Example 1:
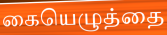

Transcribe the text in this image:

கையெழுத்தை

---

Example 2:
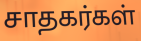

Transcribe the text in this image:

சாதகர்கள்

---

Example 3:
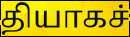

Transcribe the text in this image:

தியாகச்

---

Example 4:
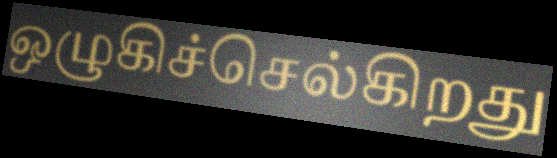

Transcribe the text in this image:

ஒழுகிச்செல்கிறது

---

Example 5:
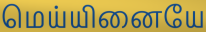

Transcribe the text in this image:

மெய்யினையே